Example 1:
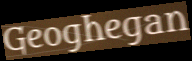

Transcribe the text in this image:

Geoghegan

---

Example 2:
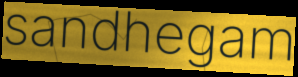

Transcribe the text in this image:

sandhegam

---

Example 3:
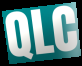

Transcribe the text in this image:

QLC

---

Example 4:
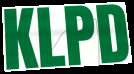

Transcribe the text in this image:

KLPD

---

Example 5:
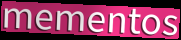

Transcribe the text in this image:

mementos